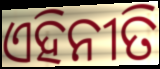
ଏହିନୀତି